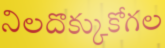
నిలదొక్కుకోగల